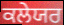
ਕਲੇਯਰ